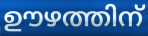
ഊഴത്തിന്